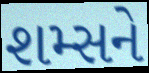
શમ્સને